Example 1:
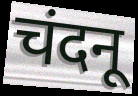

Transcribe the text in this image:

चंदनू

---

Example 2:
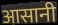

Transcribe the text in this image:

आसानी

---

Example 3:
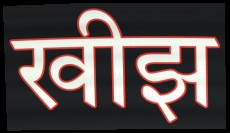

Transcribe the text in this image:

खीझ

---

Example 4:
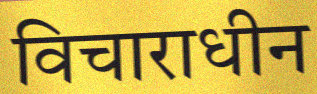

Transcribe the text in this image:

विचाराधीन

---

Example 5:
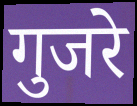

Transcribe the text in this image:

गुजरे